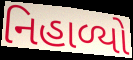
નિહાળ્યો